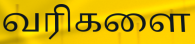
வரிகளை